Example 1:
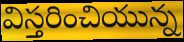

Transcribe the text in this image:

విస్తరించియున్న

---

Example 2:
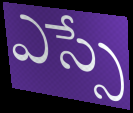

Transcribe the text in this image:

ఎస్సే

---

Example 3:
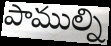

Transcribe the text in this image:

పాముల్ని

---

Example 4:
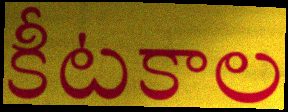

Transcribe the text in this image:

కీటకాల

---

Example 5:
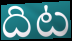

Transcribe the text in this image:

దిట